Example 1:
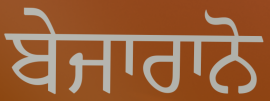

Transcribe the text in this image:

ਬੇਜਾਰਾਨੋ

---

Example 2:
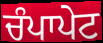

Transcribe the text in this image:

ਚੰਪਾਪੇਟ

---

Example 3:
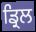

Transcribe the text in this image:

ਡ੍ਰਿਲ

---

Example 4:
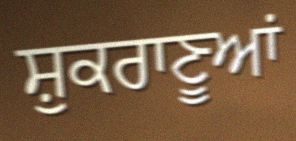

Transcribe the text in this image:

ਸ਼ੁਕਰਾਣੂਆਂ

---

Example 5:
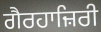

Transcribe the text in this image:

ਗੈਰਹਾਜ਼ਿਰੀ